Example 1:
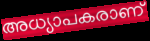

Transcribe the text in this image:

അധ്യാപകരാണ്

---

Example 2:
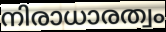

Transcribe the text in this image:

നിരാധാരത്വം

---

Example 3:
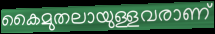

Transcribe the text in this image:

കൈമുതലായുള്ളവരാണ്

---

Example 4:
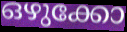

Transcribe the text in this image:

ഒഴുക്കോ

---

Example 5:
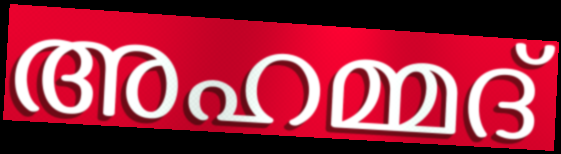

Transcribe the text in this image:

അഹമ്മദ്